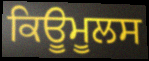
ਕਿਊਮੂਲਸ